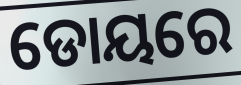
ଡୋୟରେ